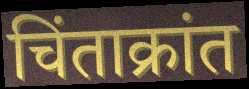
चिंताक्रांत